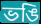
ভঙি